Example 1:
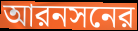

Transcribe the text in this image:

আরনসনের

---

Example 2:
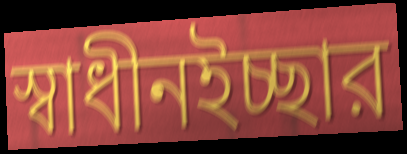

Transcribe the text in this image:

স্বাধীনইচ্ছার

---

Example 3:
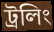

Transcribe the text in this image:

ট্রলিং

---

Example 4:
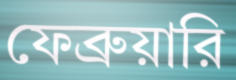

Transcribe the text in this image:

ফেব্রুয়ারি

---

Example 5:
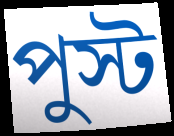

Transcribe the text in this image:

পুস্ট